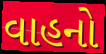
વાહનો